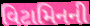
વિટામિનની